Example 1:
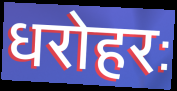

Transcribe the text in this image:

धरोहरः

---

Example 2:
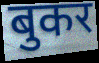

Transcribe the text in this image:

बुकर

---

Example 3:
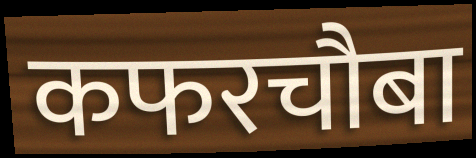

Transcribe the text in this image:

कफरचौबा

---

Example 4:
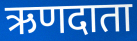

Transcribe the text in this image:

ऋणदाता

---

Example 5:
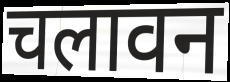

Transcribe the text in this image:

चलावन